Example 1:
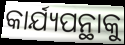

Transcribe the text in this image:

କାର୍ଯ୍ୟପନ୍ଥାକୁ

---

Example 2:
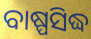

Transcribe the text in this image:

ବାଷ୍ପସିଦ୍ଧ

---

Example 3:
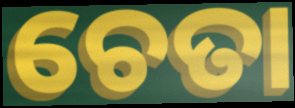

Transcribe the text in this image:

ଚେତା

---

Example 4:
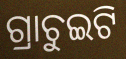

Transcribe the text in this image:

ଗ୍ରାଚୁଇଟି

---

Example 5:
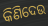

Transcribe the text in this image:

କିଣିଦେଉ